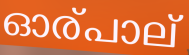
ഓര്പാല്